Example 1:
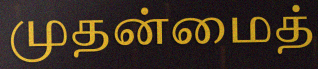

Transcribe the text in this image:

முதன்மைத்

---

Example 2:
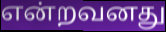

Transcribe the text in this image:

என்றவனது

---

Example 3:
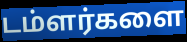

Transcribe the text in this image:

டம்ளர்களை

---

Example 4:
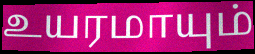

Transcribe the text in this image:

உயரமாயும்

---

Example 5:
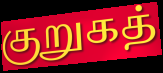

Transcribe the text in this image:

குறுகத்